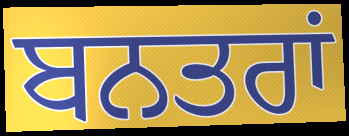
ਬਨਤਰਾਂ